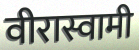
वीरास्वामी